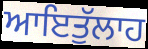
ਆਇਤੁੱਲਾਹ